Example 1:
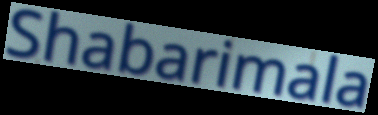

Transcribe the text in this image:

Shabarimala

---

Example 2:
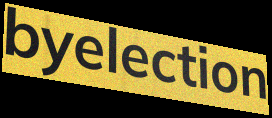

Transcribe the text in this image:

byelection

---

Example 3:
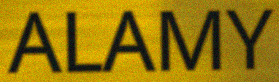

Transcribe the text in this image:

ALAMY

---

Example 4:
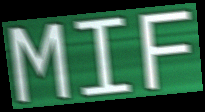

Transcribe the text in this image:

MIF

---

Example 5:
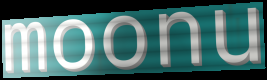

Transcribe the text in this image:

moonu